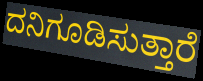
ದನಿಗೂಡಿಸುತ್ತಾರೆ